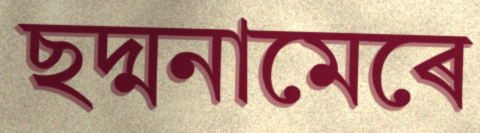
ছদ্মনামেৰে